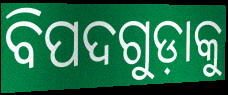
ବିପଦଗୁଡ଼ାକୁ